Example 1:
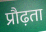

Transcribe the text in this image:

प्रौढ़ता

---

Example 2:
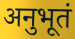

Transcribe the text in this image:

अनुभूतं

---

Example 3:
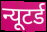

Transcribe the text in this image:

न्यूटर्ड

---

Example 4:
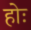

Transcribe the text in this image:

होः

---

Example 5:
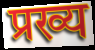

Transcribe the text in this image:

प्रख्य